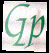
Gp